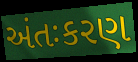
અંતઃકરણ